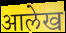
आलेख